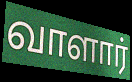
வாளார்